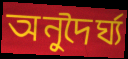
অনুদৈর্ঘ্য